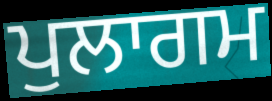
ਪੁਲਾਗਮ